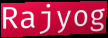
Rajyog